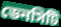
ডেনসিটি